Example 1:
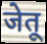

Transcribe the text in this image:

जेतू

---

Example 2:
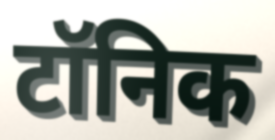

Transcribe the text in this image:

टॉनिक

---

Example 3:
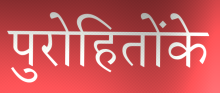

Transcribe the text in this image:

पुरोहितोंके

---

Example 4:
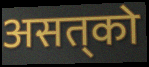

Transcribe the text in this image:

असत्‌को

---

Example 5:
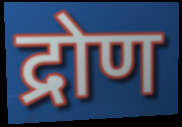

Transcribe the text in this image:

द्रोण